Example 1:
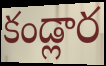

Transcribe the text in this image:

కండ్లార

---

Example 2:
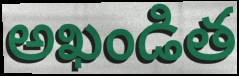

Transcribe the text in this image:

అఖండిత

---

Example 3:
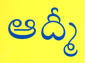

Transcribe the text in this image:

ఆద్మీ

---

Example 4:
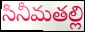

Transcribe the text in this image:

సినీమతల్లి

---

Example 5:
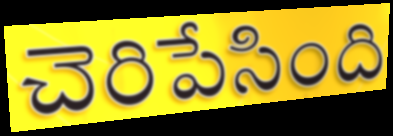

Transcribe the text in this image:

చెరిపేసింది